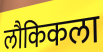
लौकिकला